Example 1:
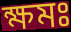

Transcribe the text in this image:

ক্ষমঃ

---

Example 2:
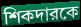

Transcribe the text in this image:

শিকদারকে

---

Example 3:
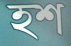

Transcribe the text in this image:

হশ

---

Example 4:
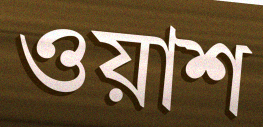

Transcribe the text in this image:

ওয়াশ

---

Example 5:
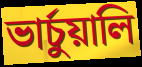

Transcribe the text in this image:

ভার্চুয়ালি